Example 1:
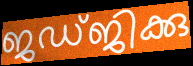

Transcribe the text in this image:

ജഡ്ജിക്കു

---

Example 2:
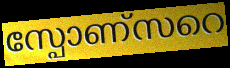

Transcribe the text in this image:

സ്പോണ്സറെ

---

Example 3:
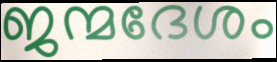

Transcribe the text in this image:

ജന്മദേശം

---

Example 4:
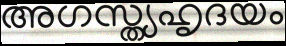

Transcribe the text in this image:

അഗസ്ത്യഹൃദയം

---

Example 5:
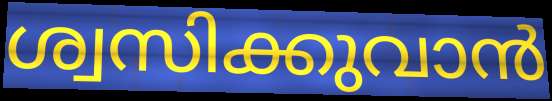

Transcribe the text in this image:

ശ്വസിക്കുവാൻ